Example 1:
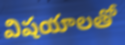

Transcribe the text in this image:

విషయాలతో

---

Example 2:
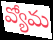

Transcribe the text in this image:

వ్యోమ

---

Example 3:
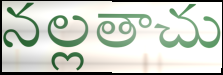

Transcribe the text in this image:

నల్లతాచు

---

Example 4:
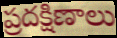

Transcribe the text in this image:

ప్రదక్షిణాలు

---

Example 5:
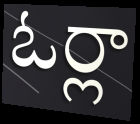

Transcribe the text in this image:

ఓర్లా